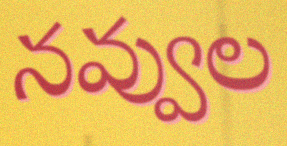
నవ్వుల